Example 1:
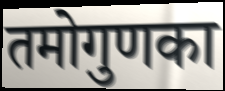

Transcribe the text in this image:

तमोगुणका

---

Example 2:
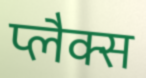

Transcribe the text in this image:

प्लैक्स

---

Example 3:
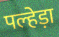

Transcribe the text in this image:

पल्हेड़ा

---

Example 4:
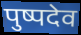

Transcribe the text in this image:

पुष्पदेव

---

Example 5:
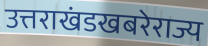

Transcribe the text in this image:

उत्तराखंडखबरेराज्य